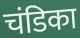
चंडिका